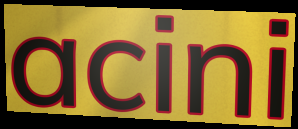
acini